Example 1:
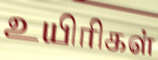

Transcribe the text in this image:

உயிரிகள்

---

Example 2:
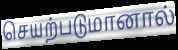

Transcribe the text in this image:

செயற்படுமானால்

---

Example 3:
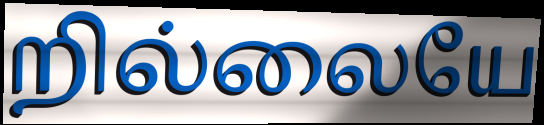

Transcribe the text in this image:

றில்லையே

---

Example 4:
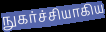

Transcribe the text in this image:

நுகர்ச்சியாகிய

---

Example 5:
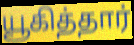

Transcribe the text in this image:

யூகித்தார்